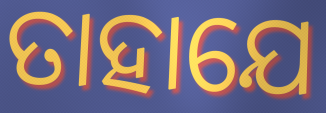
ତାହାଯେ